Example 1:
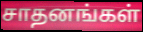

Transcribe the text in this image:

சாதனங்கள்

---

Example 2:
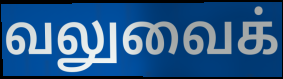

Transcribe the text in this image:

வலுவைக்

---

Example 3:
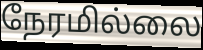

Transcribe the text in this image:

நேரமில்லை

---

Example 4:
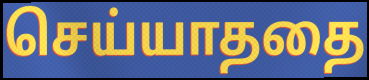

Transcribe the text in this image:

செய்யாததை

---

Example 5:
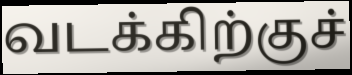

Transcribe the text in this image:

வடக்கிற்குச்